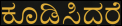
ಕೂಡಿಸಿದರೆ